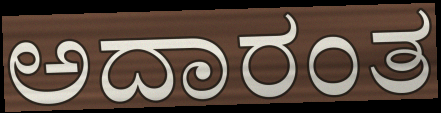
ಅದಾರಂತ